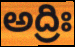
అద్రిః